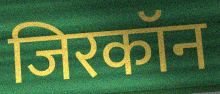
जिरकॉन